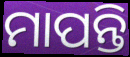
ମାପନ୍ତି